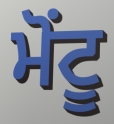
ਮੋਂਟੂ